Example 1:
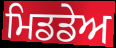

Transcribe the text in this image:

ਮਿਡਡੇਅ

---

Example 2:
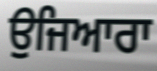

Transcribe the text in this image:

ਉਜਿਆਰਾ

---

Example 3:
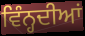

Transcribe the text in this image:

ਵਿੰਨ੍ਹਦੀਆਂ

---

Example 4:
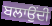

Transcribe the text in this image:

ਬਲਾਉਂਦੀ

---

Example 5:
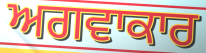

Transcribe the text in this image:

ਅਗਵਾਕਾਰ